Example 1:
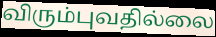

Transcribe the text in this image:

விரும்புவதில்லை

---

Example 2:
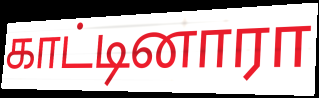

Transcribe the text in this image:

காட்டினாரா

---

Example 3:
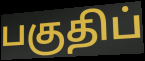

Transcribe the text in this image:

பகுதிப்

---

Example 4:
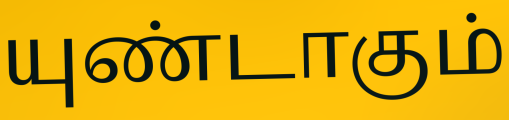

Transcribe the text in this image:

யுண்டாகும்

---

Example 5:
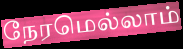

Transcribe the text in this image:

நேரமெல்லாம்